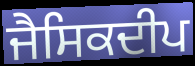
ਜੈਸਿਕਦੀਪ